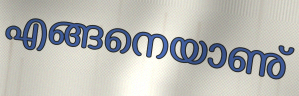
എങ്ങനെയാണു്